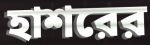
হাশরের